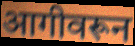
आगीवरून